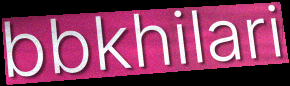
bbkhilari